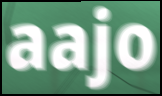
aajo